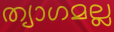
ത്യാഗമല്ല